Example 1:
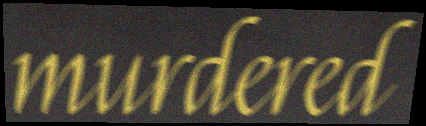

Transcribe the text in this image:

murdered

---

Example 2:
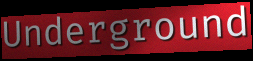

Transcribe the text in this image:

Underground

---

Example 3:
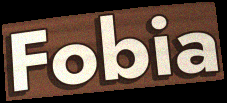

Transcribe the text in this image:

Fobia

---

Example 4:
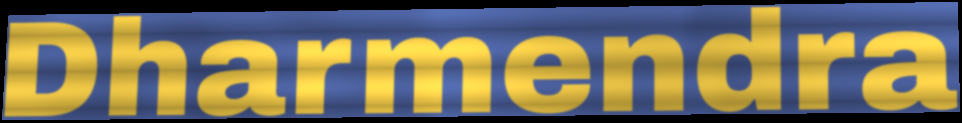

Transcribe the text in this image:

Dharmendra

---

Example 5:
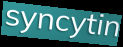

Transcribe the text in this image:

syncytin